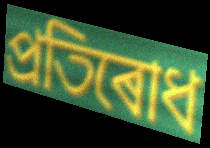
প্ৰতিৰোধ